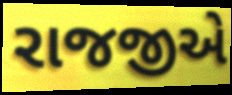
રાજજીએ